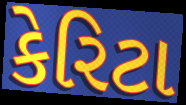
કેરિટા